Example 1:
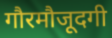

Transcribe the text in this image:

गौरमौजूदगी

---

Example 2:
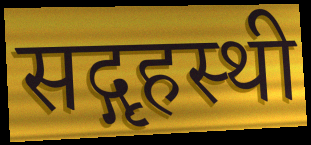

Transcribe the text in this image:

सद्गृहस्थी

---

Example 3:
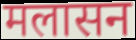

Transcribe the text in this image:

मलासन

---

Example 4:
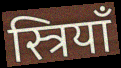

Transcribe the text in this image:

स्त्रियाँ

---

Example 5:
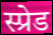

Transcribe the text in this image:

स्‍प्रेड